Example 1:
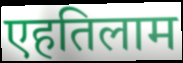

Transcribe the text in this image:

एहतिलाम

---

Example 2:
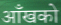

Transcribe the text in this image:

आँखको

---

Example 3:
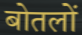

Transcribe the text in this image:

बोतलों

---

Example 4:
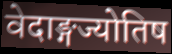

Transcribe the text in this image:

वेदाङ्गज्योतिष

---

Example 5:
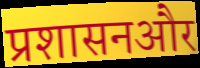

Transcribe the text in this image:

प्रशासनऔर